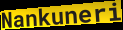
Nankuneri